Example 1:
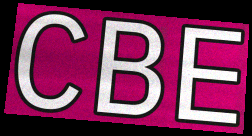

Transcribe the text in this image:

CBE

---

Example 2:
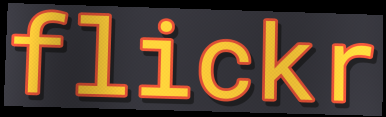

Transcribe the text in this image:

flickr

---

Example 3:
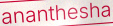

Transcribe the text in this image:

ananthesha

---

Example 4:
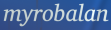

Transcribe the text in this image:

myrobalan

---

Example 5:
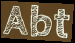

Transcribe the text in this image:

Abt